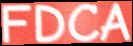
FDCA